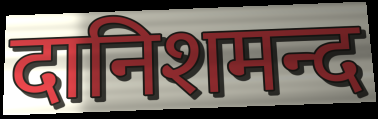
दानिशमन्द